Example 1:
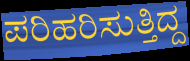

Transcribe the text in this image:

ಪರಿಹರಿಸುತ್ತಿದ್ದ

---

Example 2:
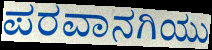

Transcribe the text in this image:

ಪರವಾನಗಿಯು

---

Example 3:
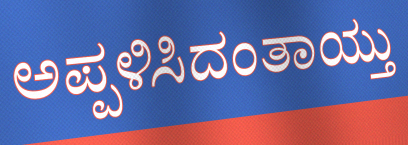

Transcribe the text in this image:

ಅಪ್ಪಳಿಸಿದಂತಾಯ್ತು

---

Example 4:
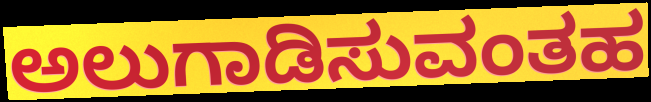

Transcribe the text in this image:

ಅಲುಗಾಡಿಸುವಂತಹ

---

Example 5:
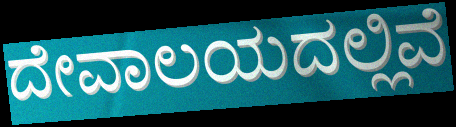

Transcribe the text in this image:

ದೇವಾಲಯದಲ್ಲಿವೆ